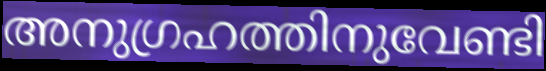
അനുഗ്രഹത്തിനുവേണ്ടി